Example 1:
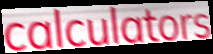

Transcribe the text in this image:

calculators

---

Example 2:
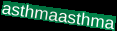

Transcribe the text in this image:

asthmaasthma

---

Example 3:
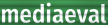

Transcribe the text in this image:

mediaeval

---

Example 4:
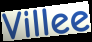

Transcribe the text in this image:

Villee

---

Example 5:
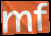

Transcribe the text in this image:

mf